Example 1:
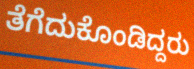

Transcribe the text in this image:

ತೆಗೆದುಕೊಂಡಿದ್ದರು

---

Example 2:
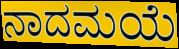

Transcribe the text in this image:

ನಾದಮಯೆ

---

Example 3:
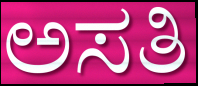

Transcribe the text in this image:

ಅಸತಿ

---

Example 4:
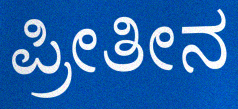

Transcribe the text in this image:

ಪ್ರೀತೀನ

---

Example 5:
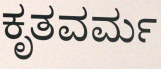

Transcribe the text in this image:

ಕೃತವರ್ಮ